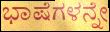
ಭಾಷೆಗಳನ್ನೇ